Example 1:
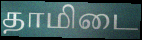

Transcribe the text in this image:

தாமிடை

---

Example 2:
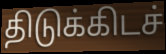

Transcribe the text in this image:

திடுக்கிடச்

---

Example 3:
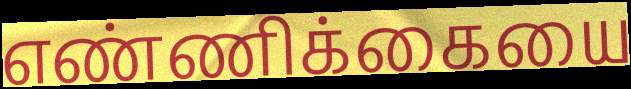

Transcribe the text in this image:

எண்ணிக்கையை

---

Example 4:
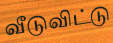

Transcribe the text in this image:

வீடுவிட்டு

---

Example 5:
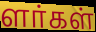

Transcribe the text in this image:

ளர்கள்